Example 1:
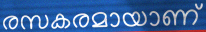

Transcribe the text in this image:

രസകരമായാണ്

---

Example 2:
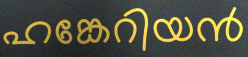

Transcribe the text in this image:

ഹങ്കേറിയൻ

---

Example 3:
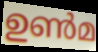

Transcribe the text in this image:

ഉൺമ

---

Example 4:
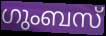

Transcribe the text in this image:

ഗുംബസ്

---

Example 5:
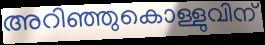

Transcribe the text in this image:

അറിഞ്ഞുകൊള്ളുവിന്